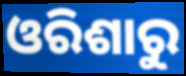
ଓରିଶାରୁ